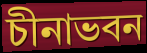
চীনাভবন